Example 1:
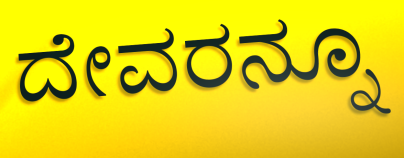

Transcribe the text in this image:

ದೇವರನ್ನೂ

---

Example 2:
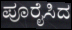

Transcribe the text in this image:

ಪೂರೈಸಿದ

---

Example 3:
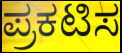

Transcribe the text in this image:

ಪ್ರಕಟಿಸ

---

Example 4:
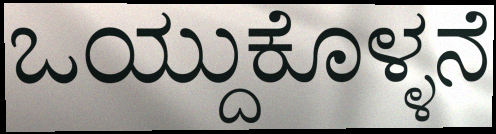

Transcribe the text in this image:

ಒಯ್ದುಕೊಳ್ಳನೆ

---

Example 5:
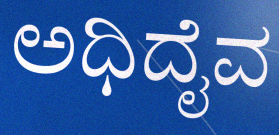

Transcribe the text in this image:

ಅಧಿದೈವ